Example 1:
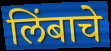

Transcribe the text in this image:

लिंबाचे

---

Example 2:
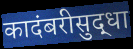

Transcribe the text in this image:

कादंबरीसुद्धा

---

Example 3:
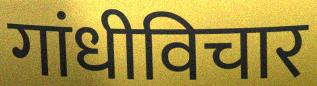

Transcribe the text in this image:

गांधीविचार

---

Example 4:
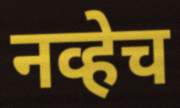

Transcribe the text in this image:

नव्हेच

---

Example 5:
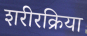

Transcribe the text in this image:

शरीरक्रिया